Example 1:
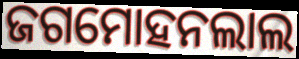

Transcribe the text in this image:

ଜଗମୋହନଲାଲ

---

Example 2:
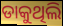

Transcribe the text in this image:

ଡାକୁଥିଲି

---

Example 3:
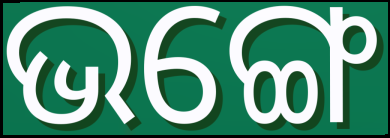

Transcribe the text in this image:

ଭଙ୍ଗେ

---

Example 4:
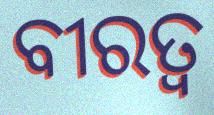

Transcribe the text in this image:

ବୀରତ୍ୱ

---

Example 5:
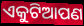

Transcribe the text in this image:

ଏକୁଟିଆପଣ